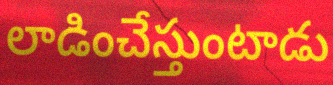
లాడించేస్తుంటాడు